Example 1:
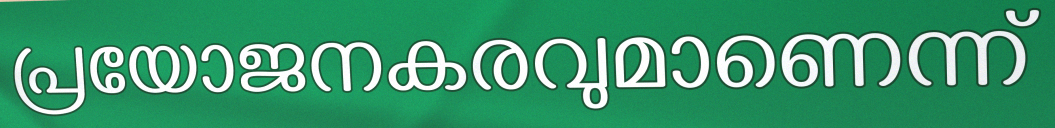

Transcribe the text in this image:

പ്രയോജനകരവുമാണെന്ന്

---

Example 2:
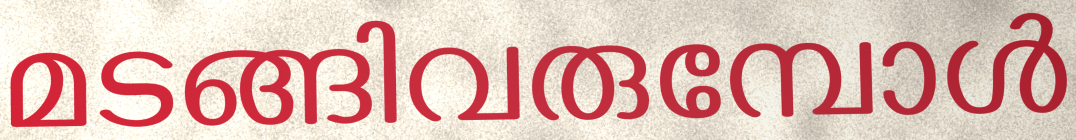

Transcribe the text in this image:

മടങ്ങിവരുമ്പോൾ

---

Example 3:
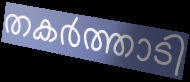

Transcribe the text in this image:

തകർത്താടി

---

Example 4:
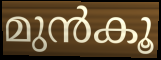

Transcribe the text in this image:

മുൻകൂ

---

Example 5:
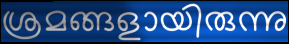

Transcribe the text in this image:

ശ്രമങ്ങളായിരുന്നു